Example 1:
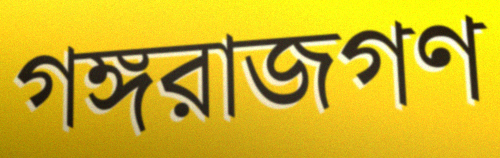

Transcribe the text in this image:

গঙ্গরাজগণ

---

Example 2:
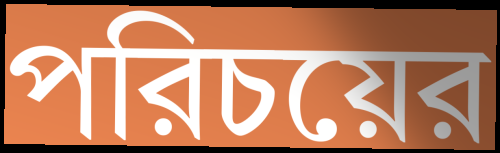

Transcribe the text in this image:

পরিচয়ের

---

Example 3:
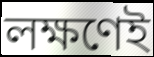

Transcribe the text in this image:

লক্ষণেই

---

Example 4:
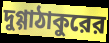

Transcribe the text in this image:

দুগ্গাঠাকুরের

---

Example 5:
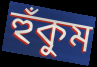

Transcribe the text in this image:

হুঁকুম